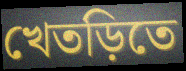
খেতড়িতে